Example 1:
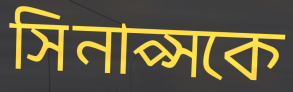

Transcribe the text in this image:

সিনাপ্সকে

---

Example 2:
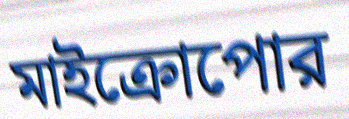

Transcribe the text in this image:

মাইক্রোপোর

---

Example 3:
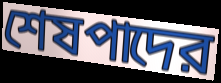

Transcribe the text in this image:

শেষপাদের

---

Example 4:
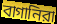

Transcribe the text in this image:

বাগানিরা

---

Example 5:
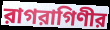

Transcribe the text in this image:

রাগরাগিণীর